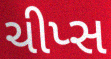
ચીપ્સ